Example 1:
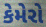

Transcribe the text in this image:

કેમેરો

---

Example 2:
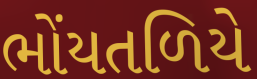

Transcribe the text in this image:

ભોંયતળિયે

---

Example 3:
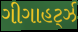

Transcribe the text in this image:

ગીગાહર્ટ્ઝ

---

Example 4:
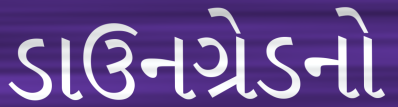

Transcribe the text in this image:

ડાઉનગ્રેડનો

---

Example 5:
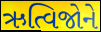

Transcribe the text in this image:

ઋત્વિજોને